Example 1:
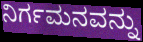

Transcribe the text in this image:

ನಿರ್ಗಮನವನ್ನು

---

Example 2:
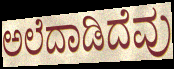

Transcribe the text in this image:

ಅಲೆದಾಡಿದೆವು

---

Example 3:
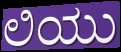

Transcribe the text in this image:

ಲಿಯು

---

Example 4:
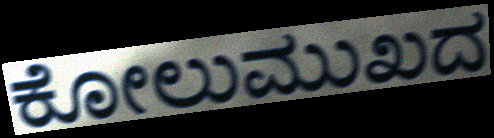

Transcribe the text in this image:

ಕೋಲುಮುಖದ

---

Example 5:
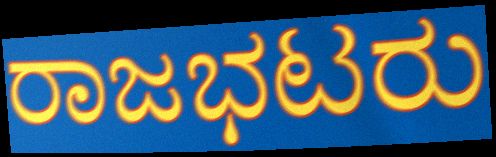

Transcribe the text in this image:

ರಾಜಭಟರು